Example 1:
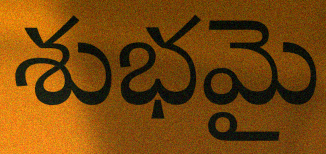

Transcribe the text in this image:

శుభమై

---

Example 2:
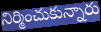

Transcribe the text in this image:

నిర్మించుకున్నారు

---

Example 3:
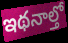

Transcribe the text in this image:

ఇథనాల్తో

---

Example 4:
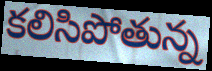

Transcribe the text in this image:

కలిసిపోతున్న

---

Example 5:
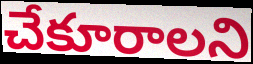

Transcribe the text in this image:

చేకూరాలని